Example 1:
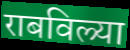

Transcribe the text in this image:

राबविल्या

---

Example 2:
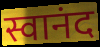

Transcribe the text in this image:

स्वानंद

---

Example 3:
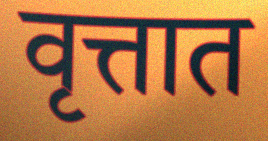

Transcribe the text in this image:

वृत्तात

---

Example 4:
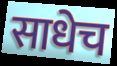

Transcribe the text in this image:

साधेच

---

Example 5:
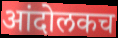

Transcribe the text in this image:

आंदोलकच